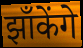
झाँकेंगे